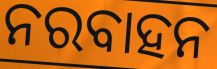
ନରବାହନ